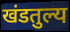
खंडतुल्य